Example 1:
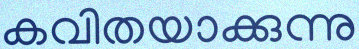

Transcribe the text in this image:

കവിതയാക്കുന്നു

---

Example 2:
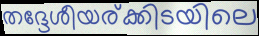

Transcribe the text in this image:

തദ്ദേശീയര്ക്കിടയിലെ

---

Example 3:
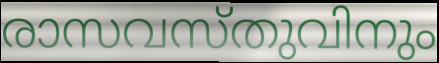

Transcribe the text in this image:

രാസവസ്തുവിനും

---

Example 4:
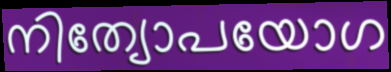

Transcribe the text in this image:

നിത്യോപയോഗ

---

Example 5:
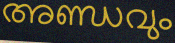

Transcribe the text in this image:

അണ്ഡവും